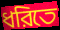
ধরিতে